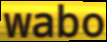
wabo